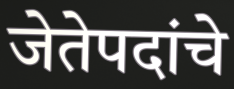
जेतेपदांचे